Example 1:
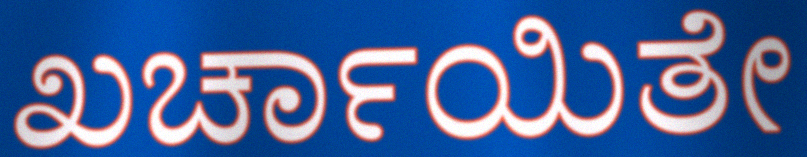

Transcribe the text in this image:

ಖರ್ಚಾಯಿತೇ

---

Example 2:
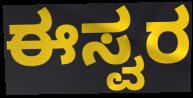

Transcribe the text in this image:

ಈಸ್ವರ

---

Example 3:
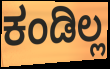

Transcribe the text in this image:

ಕಂಡಿಲ್ಲ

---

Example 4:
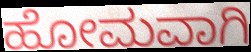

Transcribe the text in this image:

ಹೋಮವಾಗಿ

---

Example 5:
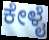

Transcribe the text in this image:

ಕೇಳೈ